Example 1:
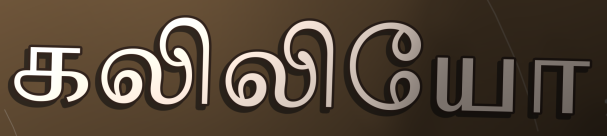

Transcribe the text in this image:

கலிலியோ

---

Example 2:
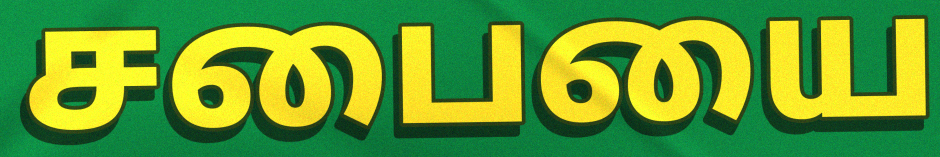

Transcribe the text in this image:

சபையை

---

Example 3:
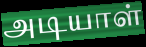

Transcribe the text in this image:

அடியாள்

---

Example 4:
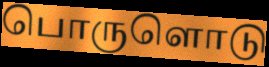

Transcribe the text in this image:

பொருளொடு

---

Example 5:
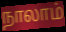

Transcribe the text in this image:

நாலாம்